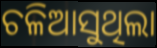
ଚଳିଆସୁଥିଲା